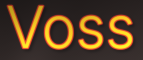
Voss